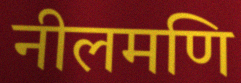
नीलमणि